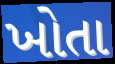
ખોતા